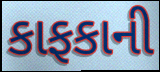
કાફકાની